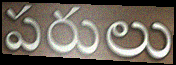
పరులు